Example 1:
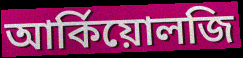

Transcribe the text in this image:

আর্কিয়োলজি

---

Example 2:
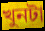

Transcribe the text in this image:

খুনটা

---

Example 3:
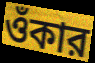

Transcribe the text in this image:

ওঁকার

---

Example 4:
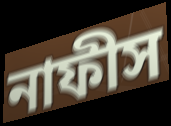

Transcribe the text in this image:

নাফীস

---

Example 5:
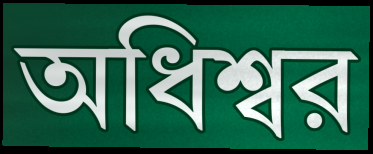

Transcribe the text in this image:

অধিশ্বর